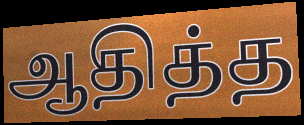
ஆதித்த